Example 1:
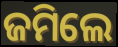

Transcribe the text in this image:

ଜମିଲେ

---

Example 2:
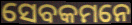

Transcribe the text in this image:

ସେବକମନେ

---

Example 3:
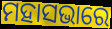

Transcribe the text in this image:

ମହାସଭାରେ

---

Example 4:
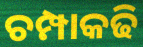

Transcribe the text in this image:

ଚମ୍ପାକଢି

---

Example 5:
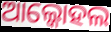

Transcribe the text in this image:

ଆଲ୍କୋହଲ